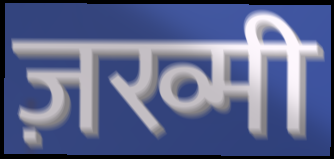
ज़ख्मी